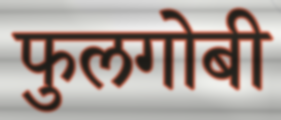
फुलगोबी